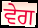
ਵੇਗ